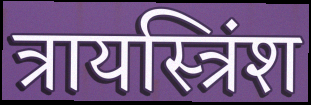
त्रायस्त्रिंश